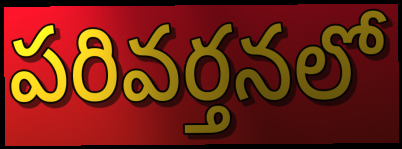
పరివర్తనలో